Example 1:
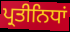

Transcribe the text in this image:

ਪ੍ਰਤੀਨਿਧਾਂ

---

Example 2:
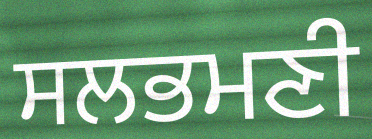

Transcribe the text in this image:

ਸਲਭਮਣੀ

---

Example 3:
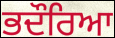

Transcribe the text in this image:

ਭਦੌਰਿਆ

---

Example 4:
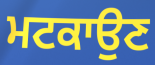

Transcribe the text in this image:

ਮਟਕਾਉਣ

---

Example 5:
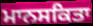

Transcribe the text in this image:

ਮਾਨਸਕਿਤਾ